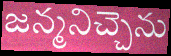
జన్మనిచ్చెను